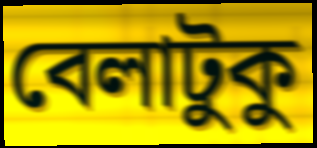
বেলাটুকু